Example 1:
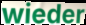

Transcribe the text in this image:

wieder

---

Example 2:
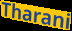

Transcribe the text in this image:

Tharani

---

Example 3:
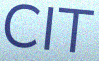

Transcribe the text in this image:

CIT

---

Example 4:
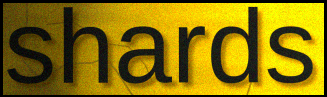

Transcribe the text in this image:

shards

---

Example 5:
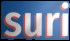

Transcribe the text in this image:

suri